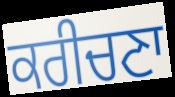
ਕਰੀਚਣਾ